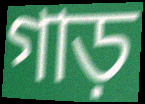
গাড়